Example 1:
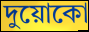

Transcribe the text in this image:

দুয়োকো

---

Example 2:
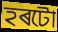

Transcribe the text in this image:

হৰটো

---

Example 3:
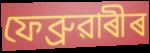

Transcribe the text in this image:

ফেব্ৰুৱাৰীৰ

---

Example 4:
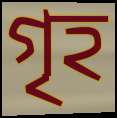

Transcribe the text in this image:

গৃহ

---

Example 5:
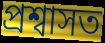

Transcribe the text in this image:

প্ৰশ্বাসত